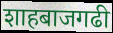
शाहबाजगढी